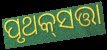
ପୃଥକ୍‌ସତ୍ତା